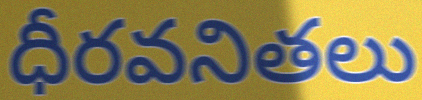
ధీరవనితలు